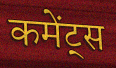
कमेंट्‌स